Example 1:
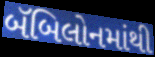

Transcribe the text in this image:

બૅબિલોનમાંથી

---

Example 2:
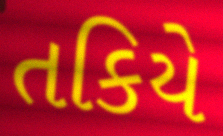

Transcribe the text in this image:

તકિયે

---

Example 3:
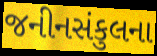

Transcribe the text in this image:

જનીનસંકુલના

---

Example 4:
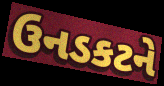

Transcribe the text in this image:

ઉનડકટને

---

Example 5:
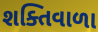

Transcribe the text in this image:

શક્તિવાળા